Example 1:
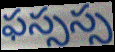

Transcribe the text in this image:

ఫస్సస్స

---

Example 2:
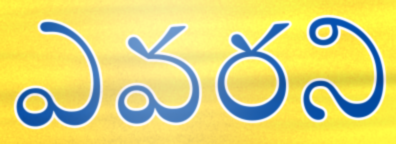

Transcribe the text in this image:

ఎవరని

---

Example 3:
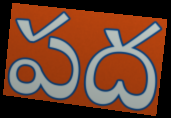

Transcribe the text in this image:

పద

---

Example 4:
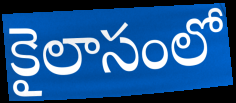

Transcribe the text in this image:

కైలాసంలో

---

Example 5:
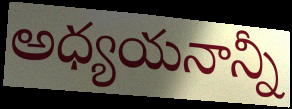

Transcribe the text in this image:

అధ్యయనాన్నీ